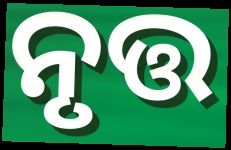
ନୃତ୍ତ